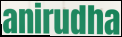
anirudha